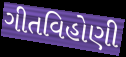
ગીતવિહોણી